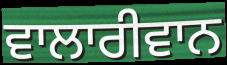
ਵਾਲਾਰੀਵਾਨ